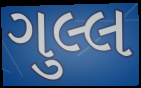
ગુલ્લ